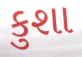
કુશા